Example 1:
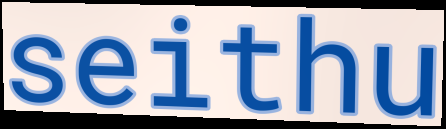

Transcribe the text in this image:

seithu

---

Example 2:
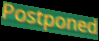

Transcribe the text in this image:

Postponed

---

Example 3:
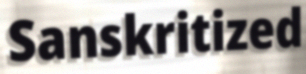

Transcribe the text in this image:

Sanskritized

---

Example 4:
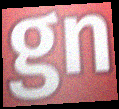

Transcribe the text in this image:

gn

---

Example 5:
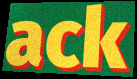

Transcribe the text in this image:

ack